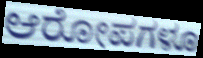
ಆರೋಪಗಳೂ